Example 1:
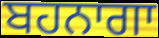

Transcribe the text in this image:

ਬਹਨਾਗਾ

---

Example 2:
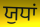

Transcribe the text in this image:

ਯੁਧਾਂ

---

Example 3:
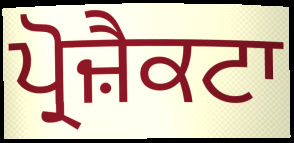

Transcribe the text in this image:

ਪ੍ਰੋਜ਼ੈਕਟਾ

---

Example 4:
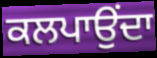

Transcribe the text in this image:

ਕਲਪਾਉਂਦਾ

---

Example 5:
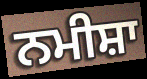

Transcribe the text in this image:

ਨਮੀਸ਼ਾ